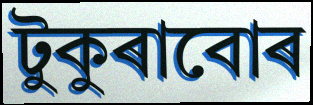
টুকুৰাবোৰ